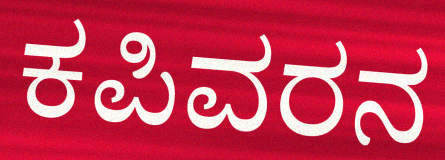
ಕಪಿವರನ